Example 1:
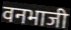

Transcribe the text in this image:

वनभाजी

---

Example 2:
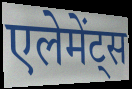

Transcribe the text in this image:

एलेमेंट्स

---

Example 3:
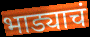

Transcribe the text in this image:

भाड्याचं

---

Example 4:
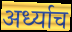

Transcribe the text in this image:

अर्ध्याच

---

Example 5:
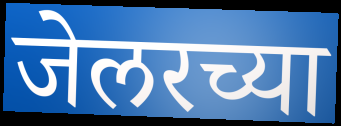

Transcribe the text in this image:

जेलरच्या